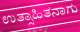
ಉತ್ಸಾಹಿತನಾಗು